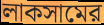
লাকসামের